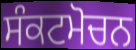
ਸੰਕਟਮੋਚਨ